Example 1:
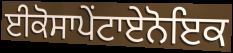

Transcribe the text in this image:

ਈਕੋਸਾਪੇਂਟਾਏਨੋਇਕ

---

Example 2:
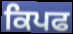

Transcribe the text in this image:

ਕਿਪਫ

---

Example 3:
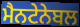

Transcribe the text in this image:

ਮੈਨਟੇਨੇਬਲ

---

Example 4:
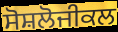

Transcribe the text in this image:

ਸੋਸ਼ਲੋਜੀਕਲ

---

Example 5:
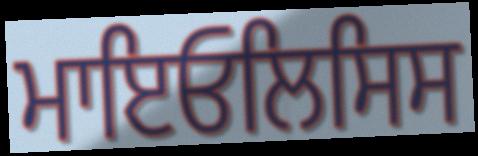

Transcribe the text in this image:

ਮਾਇਓਲਿਸਿਸ